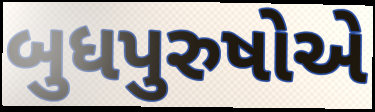
બુધપુરુષોએ